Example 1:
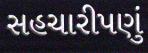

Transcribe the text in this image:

સહચારીપણું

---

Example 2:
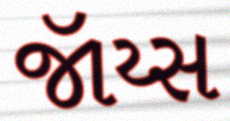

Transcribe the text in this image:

જૉય્સ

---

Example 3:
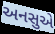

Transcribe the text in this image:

અનસુએ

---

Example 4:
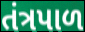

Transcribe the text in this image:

તંત્રપાળ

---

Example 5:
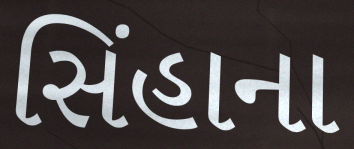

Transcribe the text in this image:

સિંહાના